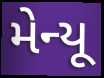
મેન્યૂ